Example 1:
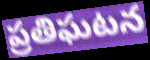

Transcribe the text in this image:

ప్రతిఘటన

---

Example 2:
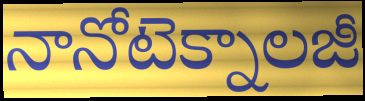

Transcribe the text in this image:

నానోటెక్నాలజీ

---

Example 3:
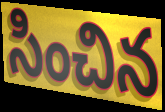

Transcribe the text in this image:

సించిన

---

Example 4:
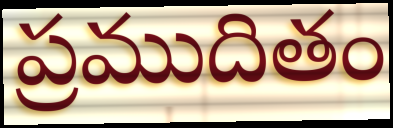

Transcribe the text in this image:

ప్రముదితం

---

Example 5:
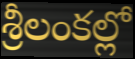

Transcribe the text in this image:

శ్రీలంకల్లో